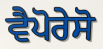
ਵੈਪੋਰੇਸੋ